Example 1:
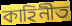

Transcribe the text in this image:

কাহিনীত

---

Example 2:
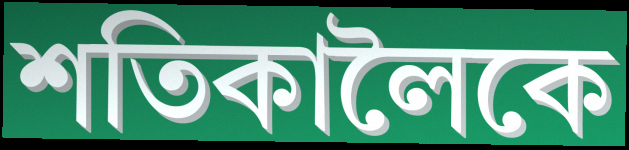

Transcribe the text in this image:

শতিকালৈকে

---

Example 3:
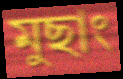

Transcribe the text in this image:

মুছাং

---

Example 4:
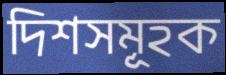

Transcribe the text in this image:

দিশসমূহক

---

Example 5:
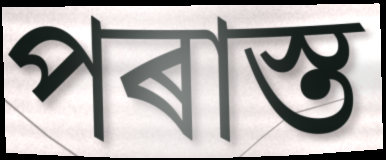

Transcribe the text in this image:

পৰাস্ত